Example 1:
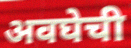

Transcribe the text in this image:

अवघेची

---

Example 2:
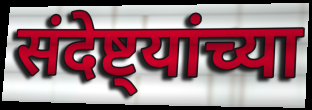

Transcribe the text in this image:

संदेष्ट्यांच्या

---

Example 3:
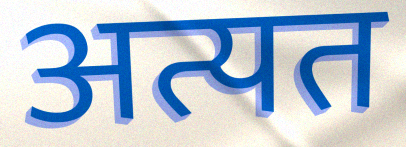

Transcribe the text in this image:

अत्यत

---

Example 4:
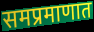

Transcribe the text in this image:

समप्रमाणात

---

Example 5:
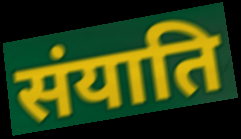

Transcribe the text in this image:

संयाति